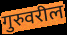
गुरुवरील